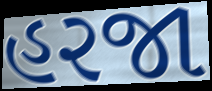
હરજા